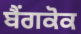
ਬੈਂਗਕੋਕ